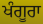
ਖੰਗੂਰਾ